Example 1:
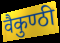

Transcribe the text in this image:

वैकुण्ठी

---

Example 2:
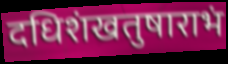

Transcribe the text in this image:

दधिशंखतुषाराभं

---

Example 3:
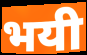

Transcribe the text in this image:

भयी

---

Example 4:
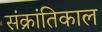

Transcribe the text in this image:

संक्रांतिकाल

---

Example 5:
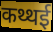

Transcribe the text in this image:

कथ्थई